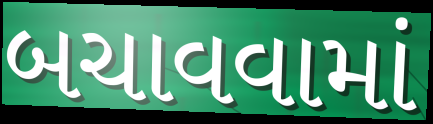
બચાવવામાં